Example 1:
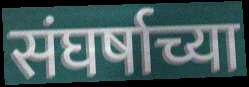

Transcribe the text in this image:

संघर्षाच्या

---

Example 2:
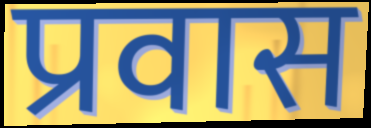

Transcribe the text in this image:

प्रवास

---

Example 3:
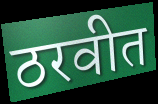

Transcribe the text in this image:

ठरवीत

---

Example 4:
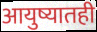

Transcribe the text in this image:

आयुष्यातही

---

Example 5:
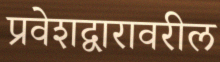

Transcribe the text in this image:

प्रवेशद्वारावरील